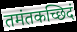
तमंतकच्छिदं